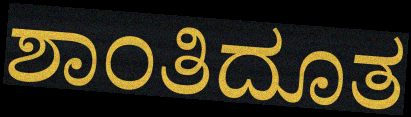
ಶಾಂತಿದೂತ